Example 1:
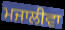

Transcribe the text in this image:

ਮਜਾਲੀਵਾ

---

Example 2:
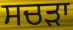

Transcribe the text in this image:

ਸਚੜਾ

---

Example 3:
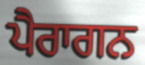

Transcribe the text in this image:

ਪੈਰਾਗਨ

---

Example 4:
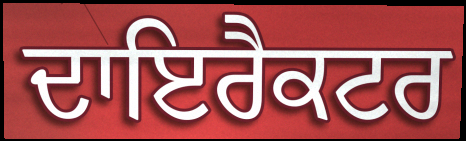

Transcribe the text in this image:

ਦਾਇਰੈਕਟਰ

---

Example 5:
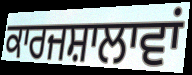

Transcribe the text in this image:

ਕਾਰਜਸ਼ਾਲਾਵਾਂ